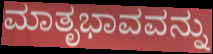
ಮಾತೃಭಾವವನ್ನು